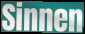
Sinnen